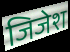
जिजेश